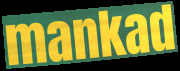
mankad